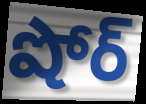
షోర్